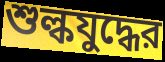
শুল্কযুদ্ধের